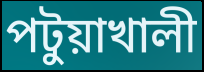
পটুয়াখালী